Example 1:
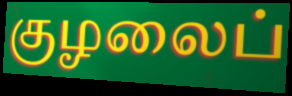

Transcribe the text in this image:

குழலைப்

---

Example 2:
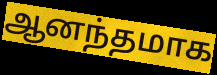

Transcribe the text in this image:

ஆனந்தமாக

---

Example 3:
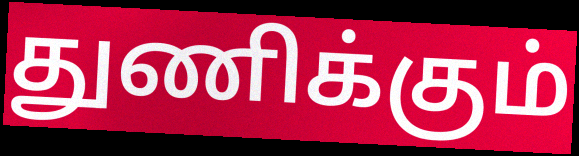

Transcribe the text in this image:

துணிக்கும்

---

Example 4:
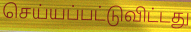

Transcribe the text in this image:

செய்யப்பட்டுவிட்டது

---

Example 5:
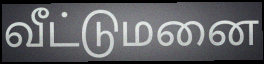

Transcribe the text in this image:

வீட்டுமனை